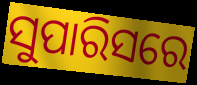
ସୁପାରିସରେ